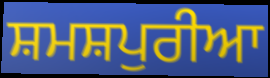
ਸ਼ਮਸ਼ਪੁਰੀਆ